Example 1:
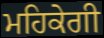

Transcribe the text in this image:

ਮਹਿਕੇਗੀ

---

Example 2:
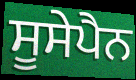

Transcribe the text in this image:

ਸੂਸੇਪੈਨ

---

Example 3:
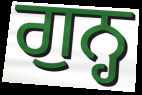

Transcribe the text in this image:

ਗੁਨ੍ਹ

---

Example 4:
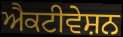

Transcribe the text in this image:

ਐਕਟੀਵੇਸ਼ਨ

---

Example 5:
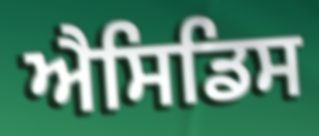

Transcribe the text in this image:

ਐਸਿਡਿਸ